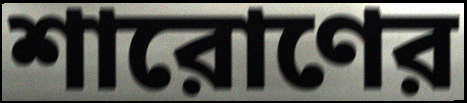
শারোণের